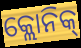
କ୍ଲୋନିକ୍